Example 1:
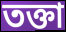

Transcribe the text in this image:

তক্তা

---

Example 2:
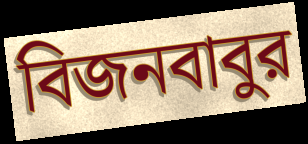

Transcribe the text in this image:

বিজনবাবুর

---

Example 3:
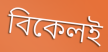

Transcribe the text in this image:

বিকেলই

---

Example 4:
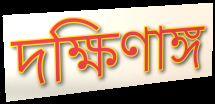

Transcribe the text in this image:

দক্ষিণাঙ্গ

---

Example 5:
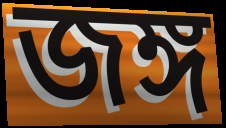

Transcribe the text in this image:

জঙ্গ